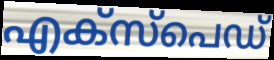
എക്സ്പെഡ്